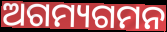
ଅଗମ୍ୟଗମନ